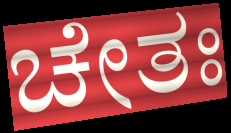
ಚೇತಃ